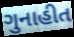
ગુનાહીત